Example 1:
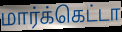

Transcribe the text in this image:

மார்க்கெட்டா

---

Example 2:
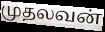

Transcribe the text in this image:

முதலவன்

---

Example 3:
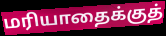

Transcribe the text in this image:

மரியாதைக்குத்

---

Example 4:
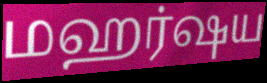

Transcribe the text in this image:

மஹர்ஷய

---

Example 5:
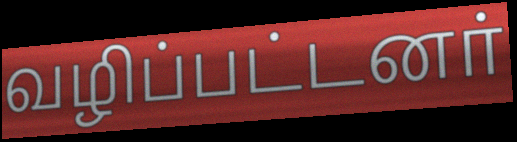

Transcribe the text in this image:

வழிப்பட்டனர்